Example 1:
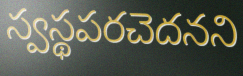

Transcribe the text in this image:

స్వస్థపరచెదనని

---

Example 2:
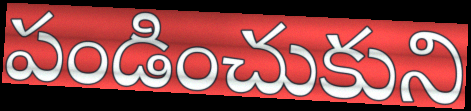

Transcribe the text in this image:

పండించుకుని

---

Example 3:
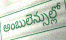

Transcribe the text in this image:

అంబులెన్సుల్లో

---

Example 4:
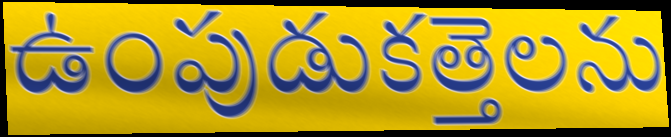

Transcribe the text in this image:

ఉంపుడుకత్తెలను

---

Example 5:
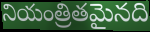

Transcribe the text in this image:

నియంత్రితమైనది